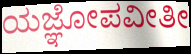
ಯಜ್ಞೋಪವೀತೀ